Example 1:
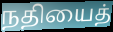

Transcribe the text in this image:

நதியைத்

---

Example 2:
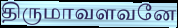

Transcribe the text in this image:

திருமாவளவனே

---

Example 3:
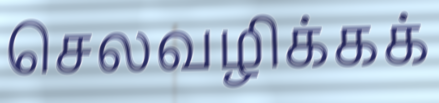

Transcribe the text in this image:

செலவழிக்கக்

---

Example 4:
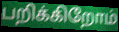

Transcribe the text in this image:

பறிக்கிறோம்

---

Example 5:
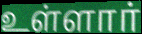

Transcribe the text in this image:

உள்ளார்